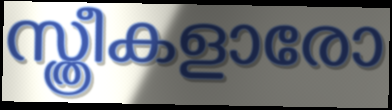
സ്ത്രീകളാരോ